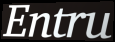
Entru